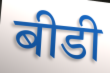
बीडी